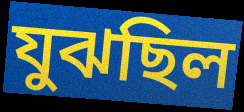
যুঝছিল